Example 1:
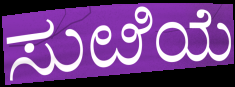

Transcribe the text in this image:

ಸುೞಿಯೆ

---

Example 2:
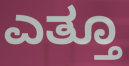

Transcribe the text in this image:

ಎತ್ತೂ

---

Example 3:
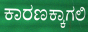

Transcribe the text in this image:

ಕಾರಣಕ್ಕಾಗಲಿ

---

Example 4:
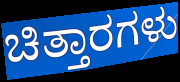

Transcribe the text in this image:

ಚಿತ್ತಾರಗಳು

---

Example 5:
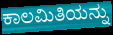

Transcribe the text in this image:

ಕಾಲಮಿತಿಯನ್ನು